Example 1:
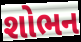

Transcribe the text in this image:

શોભન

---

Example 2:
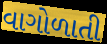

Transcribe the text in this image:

વાગોળાતી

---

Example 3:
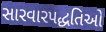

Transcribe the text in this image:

સારવારપદ્ધતિઓ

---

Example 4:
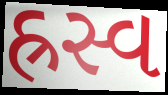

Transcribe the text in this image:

હ્રસ્વ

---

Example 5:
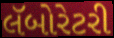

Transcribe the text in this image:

લૅબોરેટરી